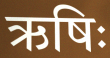
ऋषिः